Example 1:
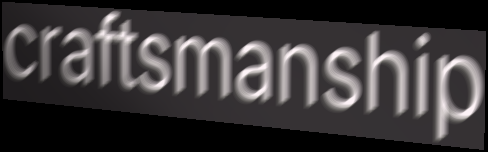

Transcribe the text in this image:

craftsmanship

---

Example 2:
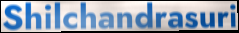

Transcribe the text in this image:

Shilchandrasuri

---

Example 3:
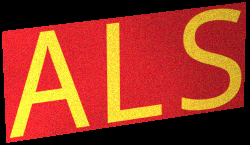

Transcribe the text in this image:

ALS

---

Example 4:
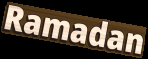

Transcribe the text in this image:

Ramadan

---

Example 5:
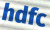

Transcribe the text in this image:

hdfc